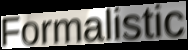
Formalistic